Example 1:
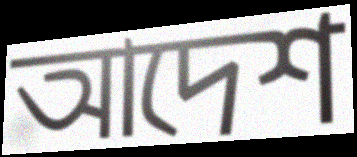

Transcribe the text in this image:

আদেশ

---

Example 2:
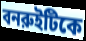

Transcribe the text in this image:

বনরুইটিকে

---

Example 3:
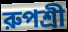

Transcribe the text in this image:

রুপশ্রী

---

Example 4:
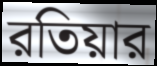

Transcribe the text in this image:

রতিয়ার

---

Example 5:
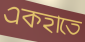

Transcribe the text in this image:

একহাতে